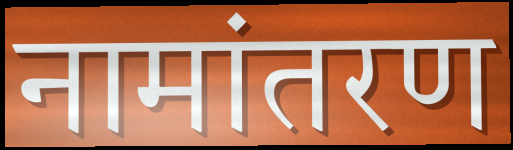
नामांतरण